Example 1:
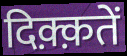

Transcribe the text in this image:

दिक़्क़तें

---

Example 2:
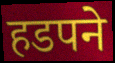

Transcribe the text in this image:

हडपने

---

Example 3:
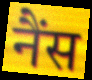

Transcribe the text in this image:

नैंस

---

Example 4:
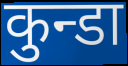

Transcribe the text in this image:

कुन्डा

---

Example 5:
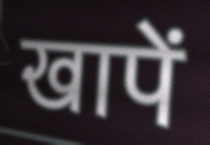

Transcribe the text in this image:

खापें